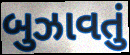
બુઝાવતું